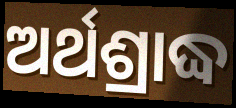
ଅର୍ଥଶ୍ରାଦ୍ଧ